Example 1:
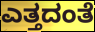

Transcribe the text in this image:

ಎತ್ತದಂತೆ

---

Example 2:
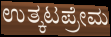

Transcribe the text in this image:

ಉತ್ಕಟಪ್ರೇಮ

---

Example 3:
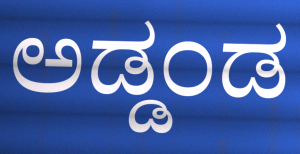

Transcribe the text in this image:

ಅಡ್ಡಂಡ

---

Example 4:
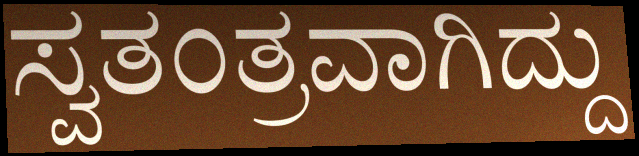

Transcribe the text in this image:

ಸ್ವತಂತ್ರವಾಗಿದ್ದು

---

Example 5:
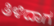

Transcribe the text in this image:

ತಿಳಿದಾಗ